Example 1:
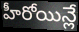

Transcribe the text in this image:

హీరోయిన్లే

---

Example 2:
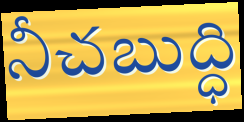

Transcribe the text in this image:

నీచబుద్ధి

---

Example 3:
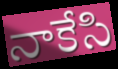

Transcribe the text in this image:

నాకేసి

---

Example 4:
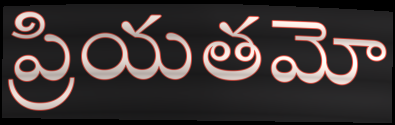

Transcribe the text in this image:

ప్రియతమో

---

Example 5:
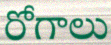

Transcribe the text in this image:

రోగాలు